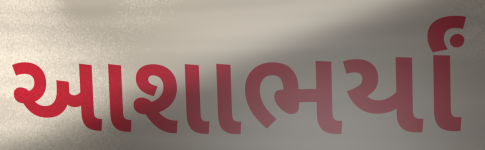
આશાભર્યાં